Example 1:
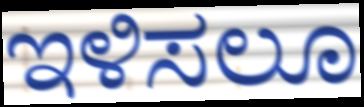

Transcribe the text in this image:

ಇಳಿಸಲೂ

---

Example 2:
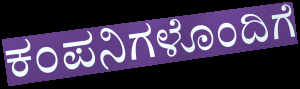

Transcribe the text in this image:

ಕಂಪನಿಗಳೊಂದಿಗೆ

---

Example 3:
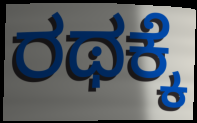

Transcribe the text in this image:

ರಥಕ್ಕೆ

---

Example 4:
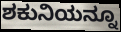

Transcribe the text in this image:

ಶಕುನಿಯನ್ನೂ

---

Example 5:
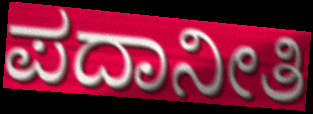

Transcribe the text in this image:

ಪದಾನೀತಿ